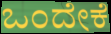
ಒಂದೇಕೆ